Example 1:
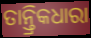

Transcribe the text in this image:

ତାନ୍ତ୍ରିକଧାରା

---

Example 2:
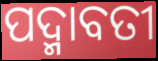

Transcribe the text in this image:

ପଦ୍ମାବତୀ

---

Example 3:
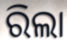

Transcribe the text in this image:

ରିଲା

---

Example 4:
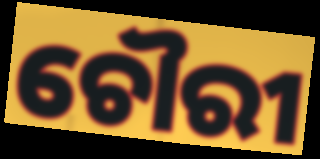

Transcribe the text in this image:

ଚୌରୀ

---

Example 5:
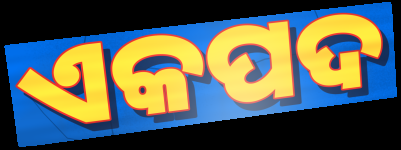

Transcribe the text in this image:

ଏକପଦ